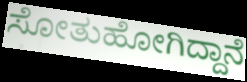
ಸೋತುಹೋಗಿದ್ದಾನೆ